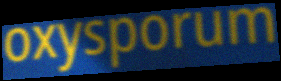
oxysporum